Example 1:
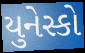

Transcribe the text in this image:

યુનેસ્કો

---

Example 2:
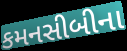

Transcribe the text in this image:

કમનસીબીના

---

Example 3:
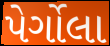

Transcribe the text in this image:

પેર્ગોલા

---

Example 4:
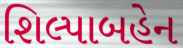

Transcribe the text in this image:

શિલ્પાબહેન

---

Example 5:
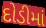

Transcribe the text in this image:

દોડીમાં